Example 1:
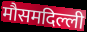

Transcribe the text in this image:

मौसमदिल्ली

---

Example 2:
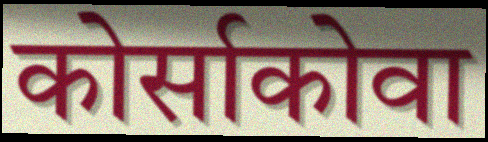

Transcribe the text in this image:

कोर्साकोवा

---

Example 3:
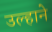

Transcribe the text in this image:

उल्हाने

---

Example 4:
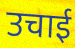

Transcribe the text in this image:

उचाई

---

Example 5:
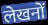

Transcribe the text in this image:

लेखनों